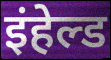
इंहेल्ड